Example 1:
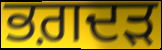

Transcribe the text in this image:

ਭਗ਼ਦੜ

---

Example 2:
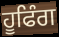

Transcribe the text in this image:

ਹੂਫਿੰਗ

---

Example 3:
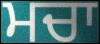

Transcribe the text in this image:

ਮਚਾ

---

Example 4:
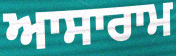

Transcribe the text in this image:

ਆਸਾਰਾਮ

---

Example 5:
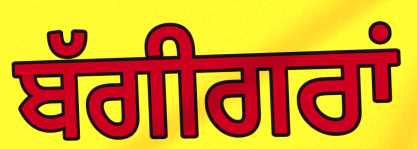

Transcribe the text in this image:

ਬੱਗੀਗਰਾਂ